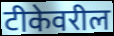
टीकेवरील